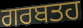
ਗਰਬਤਹ